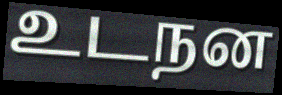
உடநன